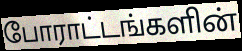
போராட்டங்களின்